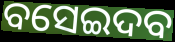
ବସେଇଦବ